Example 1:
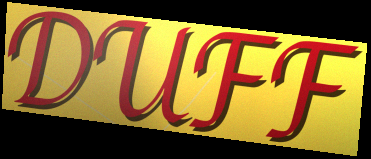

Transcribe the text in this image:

DUFF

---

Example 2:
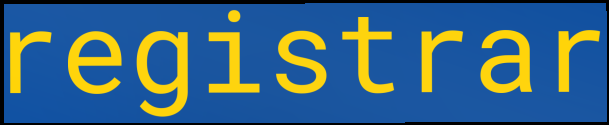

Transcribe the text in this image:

registrar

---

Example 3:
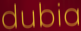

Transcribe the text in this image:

dubia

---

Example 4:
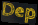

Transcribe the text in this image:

Dep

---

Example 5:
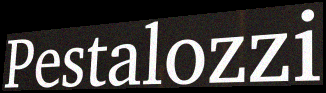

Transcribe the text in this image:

Pestalozzi